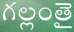
గల్లంతై